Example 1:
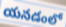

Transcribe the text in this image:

యనడంలో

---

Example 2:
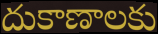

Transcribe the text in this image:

దుకాణాలకు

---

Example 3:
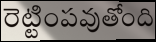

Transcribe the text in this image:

రెట్టింపవుతోంది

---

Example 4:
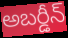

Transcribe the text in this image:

అబర్డీన్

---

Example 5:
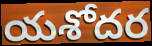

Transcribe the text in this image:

యశోదర